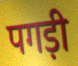
पगड़ी